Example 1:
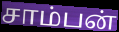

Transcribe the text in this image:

சாம்பன்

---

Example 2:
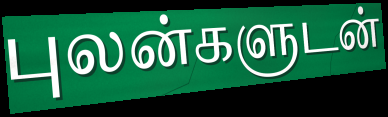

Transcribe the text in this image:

புலன்களுடன்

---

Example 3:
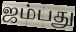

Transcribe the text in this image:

ஜம்பது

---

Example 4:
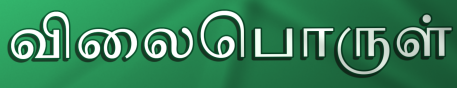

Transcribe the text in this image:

விலைபொருள்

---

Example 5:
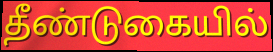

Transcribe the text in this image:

தீண்டுகையில்